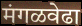
मंगळवेढा